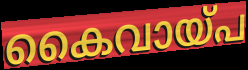
കൈവായ്പ